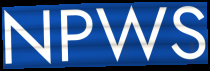
NPWS